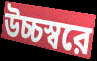
উচ্চস্বরে